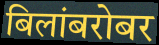
बिलांबरोबर